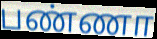
பண்ணா